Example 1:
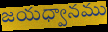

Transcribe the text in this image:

జయధ్వానము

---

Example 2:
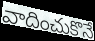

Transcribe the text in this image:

వాదించుకొనే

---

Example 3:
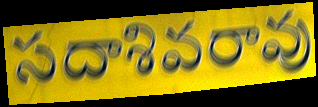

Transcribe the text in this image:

సదాశివరావు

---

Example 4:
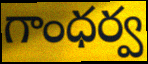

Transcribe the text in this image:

గాంధర్వ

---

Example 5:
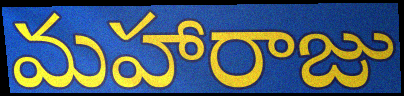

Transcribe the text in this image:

మహారాజు